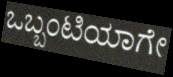
ಒಬ್ಬಂಟಿಯಾಗೇ